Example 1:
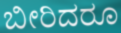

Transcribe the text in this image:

ಬೀರಿದರೂ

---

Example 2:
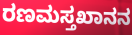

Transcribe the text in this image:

ರಣಮಸ್ತಖಾನನ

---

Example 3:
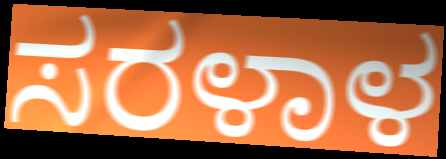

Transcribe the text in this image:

ಸರಳಾಳ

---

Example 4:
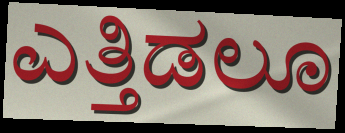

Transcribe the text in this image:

ಎತ್ತಿಡಲೂ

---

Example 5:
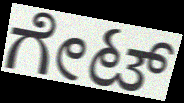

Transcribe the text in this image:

ಗೇಟ್